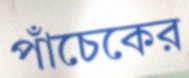
পাঁচেকের